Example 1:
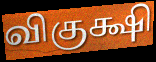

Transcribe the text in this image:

விகுக்ஷி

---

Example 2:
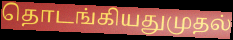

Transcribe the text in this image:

தொடங்கியதுமுதல்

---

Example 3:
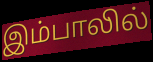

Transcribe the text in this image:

இம்பாலில்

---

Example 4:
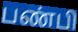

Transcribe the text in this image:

பண்பி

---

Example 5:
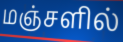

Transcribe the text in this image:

மஞ்சளில்